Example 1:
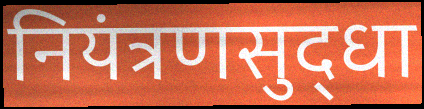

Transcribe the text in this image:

नियंत्रणसुद्धा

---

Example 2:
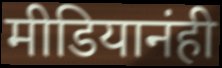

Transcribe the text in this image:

मीडियानंही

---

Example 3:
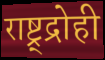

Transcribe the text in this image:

राष्ट्र्द्रोही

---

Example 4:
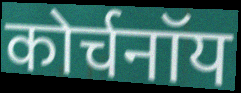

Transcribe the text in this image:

कोर्चनॉय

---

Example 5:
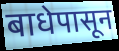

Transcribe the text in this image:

बाधेपासून